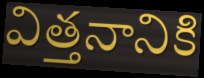
విత్తనానికి